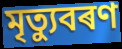
মৃত্যুবৰণ